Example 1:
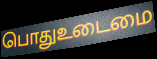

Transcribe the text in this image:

பொதுஉடைமை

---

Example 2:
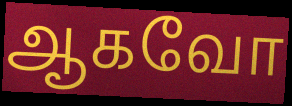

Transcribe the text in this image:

ஆகவோ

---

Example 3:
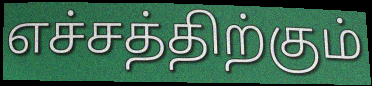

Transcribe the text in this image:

எச்சத்திற்கும்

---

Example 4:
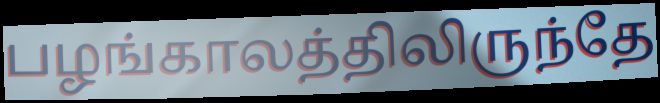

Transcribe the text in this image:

பழங்காலத்திலிருந்தே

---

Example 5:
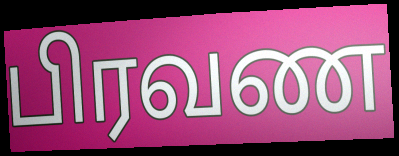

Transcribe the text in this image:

பிரவண